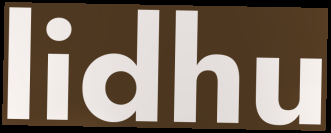
lidhu